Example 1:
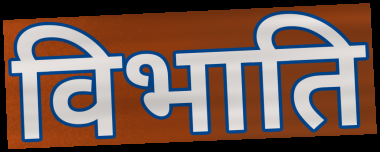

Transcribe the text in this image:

विभाति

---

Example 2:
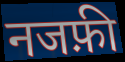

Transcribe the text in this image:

नजफ़ी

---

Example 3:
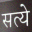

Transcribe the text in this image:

सत्ये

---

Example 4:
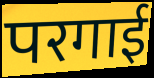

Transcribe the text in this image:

परगाई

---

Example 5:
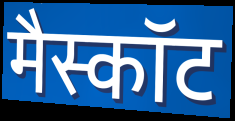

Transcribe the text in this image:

मैस्कॉट